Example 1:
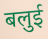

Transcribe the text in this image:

बलुई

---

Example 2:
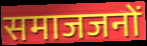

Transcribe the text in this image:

समाजजनों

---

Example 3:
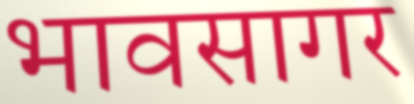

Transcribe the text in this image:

भावसागर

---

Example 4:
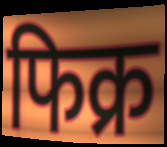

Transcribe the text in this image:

फिक्र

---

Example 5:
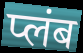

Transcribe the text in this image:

प्लंब